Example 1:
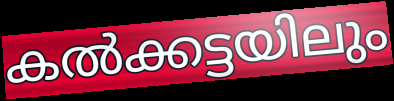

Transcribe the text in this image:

കൽക്കട്ടയിലും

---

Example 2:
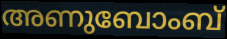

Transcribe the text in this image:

അണുബോംബ്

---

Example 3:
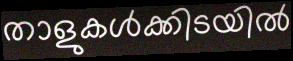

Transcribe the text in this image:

താളുകൾക്കിടയിൽ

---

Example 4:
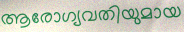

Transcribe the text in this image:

ആരോഗ്യവതിയുമായ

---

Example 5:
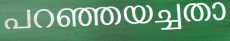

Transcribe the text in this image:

പറഞ്ഞയച്ചതാ